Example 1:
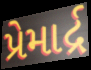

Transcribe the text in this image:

પ્રેમાર્દ્ર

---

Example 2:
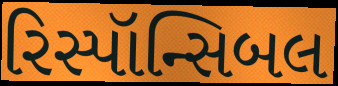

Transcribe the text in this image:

રિસ્પૉન્સિબલ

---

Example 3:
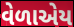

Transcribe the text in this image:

વેળાએય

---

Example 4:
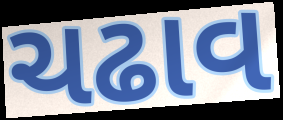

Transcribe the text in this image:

ચઢાવ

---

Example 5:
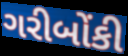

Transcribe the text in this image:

ગરીબોંકી